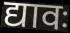
द्यावः